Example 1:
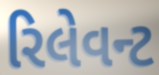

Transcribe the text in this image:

રિલેવન્ટ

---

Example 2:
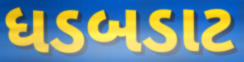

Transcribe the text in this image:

ધડબડાટ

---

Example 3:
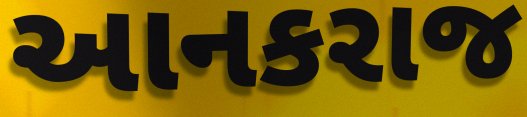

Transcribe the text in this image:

આનકરાજ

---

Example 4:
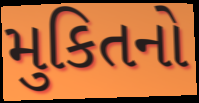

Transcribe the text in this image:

મુકિતનો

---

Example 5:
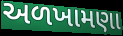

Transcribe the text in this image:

અળખામણા